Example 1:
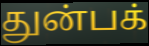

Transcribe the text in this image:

துன்பக்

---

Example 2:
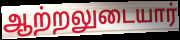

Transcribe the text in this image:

ஆற்றலுடையார்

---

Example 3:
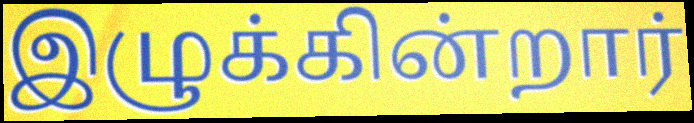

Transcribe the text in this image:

இழுக்கின்றார்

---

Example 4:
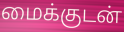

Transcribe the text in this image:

மைக்குடன்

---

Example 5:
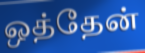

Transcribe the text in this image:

ஒத்தேன்